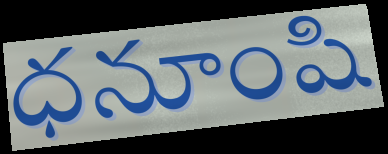
ధనూంషి